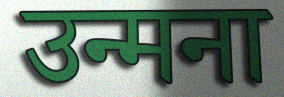
उन्मना